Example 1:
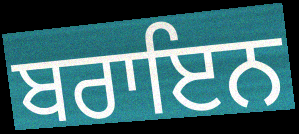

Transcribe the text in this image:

ਬਰਾਇਨ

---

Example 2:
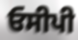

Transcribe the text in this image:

ਓਸੀਪੀ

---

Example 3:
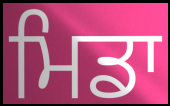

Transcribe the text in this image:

ਮਿਡਾ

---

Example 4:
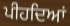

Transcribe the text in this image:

ਪੀਹਦਿਆਂ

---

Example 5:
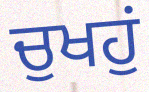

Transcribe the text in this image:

ਚੁਖਹੁਂ